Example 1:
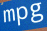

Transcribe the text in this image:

mpg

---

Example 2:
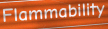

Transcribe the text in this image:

Flammability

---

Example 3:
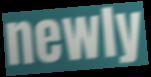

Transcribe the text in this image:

newly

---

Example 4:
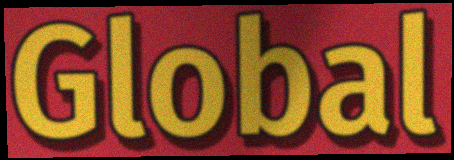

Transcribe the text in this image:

Global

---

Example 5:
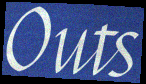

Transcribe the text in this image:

Outs